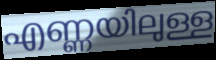
എണ്ണയിലുള്ള